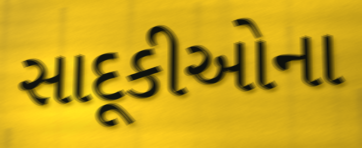
સાદૂકીઓના